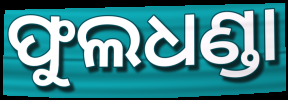
ଫୁଲଧଣ୍ଡା